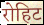
रोहिट